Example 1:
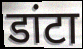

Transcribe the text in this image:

डांटा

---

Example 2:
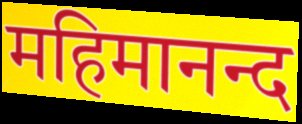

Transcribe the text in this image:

महिमानन्द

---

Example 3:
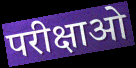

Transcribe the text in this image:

परीक्षाओ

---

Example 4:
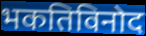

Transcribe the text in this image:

भकतिविनोद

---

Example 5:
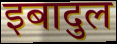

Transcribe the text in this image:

इबादुल